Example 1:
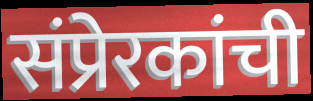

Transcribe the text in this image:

संप्रेरकांची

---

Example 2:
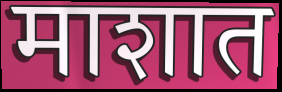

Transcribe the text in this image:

माशात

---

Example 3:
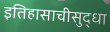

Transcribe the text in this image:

इतिहासाचीसुद्धा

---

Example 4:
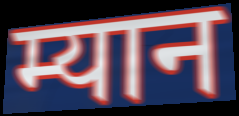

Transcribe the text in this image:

म्यान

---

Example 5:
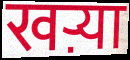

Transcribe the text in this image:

खऱ्‍या